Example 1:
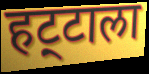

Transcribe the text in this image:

हट्‌टाला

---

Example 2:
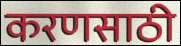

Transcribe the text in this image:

करणसाठी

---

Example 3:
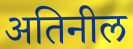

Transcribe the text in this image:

अतिनील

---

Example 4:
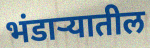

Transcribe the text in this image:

भंडाऱ्यातील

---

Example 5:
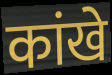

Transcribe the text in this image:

कांखे